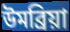
উমব্রিয়া